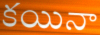
కయినా